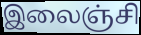
இலைஞ்சி